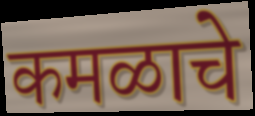
कमळाचे